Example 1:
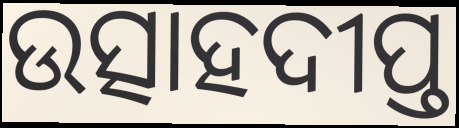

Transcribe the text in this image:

ଉତ୍ସାହଦୀପ୍ତ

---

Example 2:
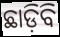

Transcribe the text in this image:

ଛାଡ଼ିବି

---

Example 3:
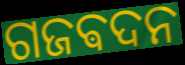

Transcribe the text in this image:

ଗଜଵଦନ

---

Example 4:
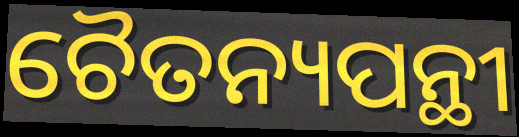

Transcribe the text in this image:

ଚୈତନ୍ୟପନ୍ଥୀ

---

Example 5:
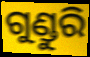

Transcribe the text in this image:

ଗୁଣ୍ଡୁରି